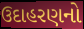
ઉદાહરણનો